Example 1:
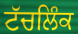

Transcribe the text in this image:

ਟੱਚਲਿੰਕ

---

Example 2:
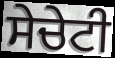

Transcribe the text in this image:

ਸੇਚੇਟੀ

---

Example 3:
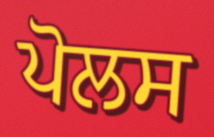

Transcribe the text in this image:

ਪੋਲਸ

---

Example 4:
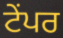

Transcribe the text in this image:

ਟੇਂਪਰ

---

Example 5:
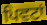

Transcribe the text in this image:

ਪਿਵਟਾਂ